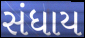
સંધાય